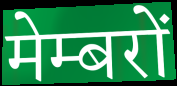
मेम्बरों